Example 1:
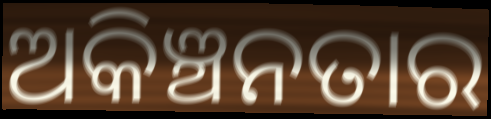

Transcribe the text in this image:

ଅକିଞ୍ଚନତାର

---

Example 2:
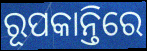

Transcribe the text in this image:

ରୂପକାନ୍ତିରେ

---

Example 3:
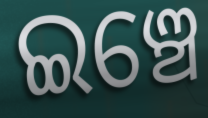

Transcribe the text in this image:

ଇଞ୍ଚେ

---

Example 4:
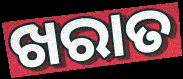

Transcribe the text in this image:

ଖରାତ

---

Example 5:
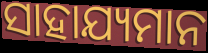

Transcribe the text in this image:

ସାହାଯ୍ୟମାନ